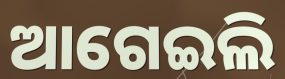
ଆଗେଇଲି